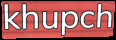
khupch